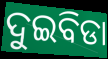
ଦୁଇବିଡା